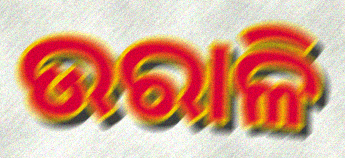
ଉରାଳି